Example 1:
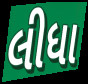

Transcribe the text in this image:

લીધા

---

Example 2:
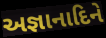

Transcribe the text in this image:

અજ્ઞાનાદિને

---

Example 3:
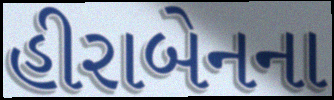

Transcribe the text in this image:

હીરાબેનના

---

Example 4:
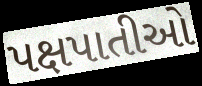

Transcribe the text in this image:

પક્ષપાતીઓ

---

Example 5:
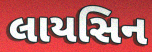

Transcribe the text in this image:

લાયસિન